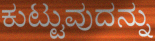
ಕುಟ್ಟುವುದನ್ನು